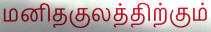
மனிதகுலத்திற்கும்